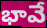
భావే